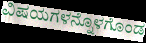
ವಿಷಯಗಳನ್ನೊಳಗೊಂಡ